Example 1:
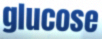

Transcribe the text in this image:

glucose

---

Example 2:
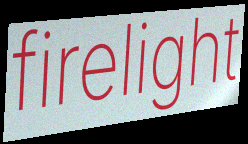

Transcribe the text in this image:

firelight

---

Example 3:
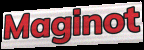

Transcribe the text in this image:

Maginot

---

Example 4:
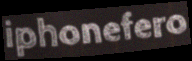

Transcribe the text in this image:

iphonefero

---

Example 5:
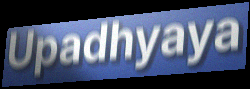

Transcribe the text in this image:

Upadhyaya